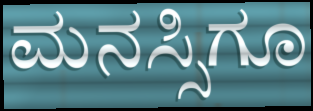
ಮನಸ್ಸಿಗೂ